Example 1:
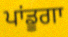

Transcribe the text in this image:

ਪਾਂਡੂਗਾ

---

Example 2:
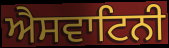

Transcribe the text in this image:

ਐਸਵਾਟਿਨੀ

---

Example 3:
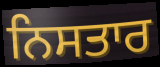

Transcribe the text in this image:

ਨਿਸਤਾਰ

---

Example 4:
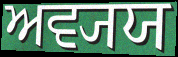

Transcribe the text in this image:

ਅਵ੍ਯਯ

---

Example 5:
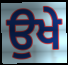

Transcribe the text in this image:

ਉਖੇ